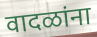
वादळांना